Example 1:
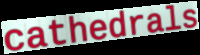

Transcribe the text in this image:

cathedrals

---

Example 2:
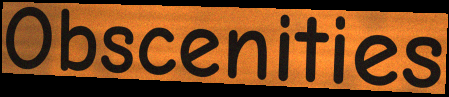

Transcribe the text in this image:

Obscenities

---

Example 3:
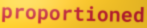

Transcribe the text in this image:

proportioned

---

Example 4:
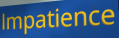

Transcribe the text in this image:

Impatience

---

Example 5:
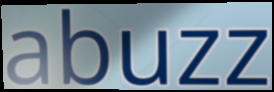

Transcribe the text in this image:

abuzz